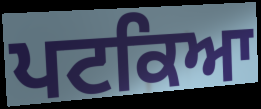
ਪਟਕਿਆ